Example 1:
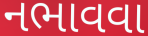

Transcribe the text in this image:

નભાવવા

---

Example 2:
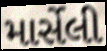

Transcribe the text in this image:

માર્સેલી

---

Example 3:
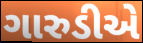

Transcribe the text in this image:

ગારુડીએ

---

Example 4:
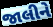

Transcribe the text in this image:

જાલીને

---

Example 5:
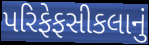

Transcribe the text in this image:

પરિફેફસીકલાનું